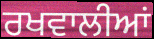
ਰਖਵਾਲੀਆਂ